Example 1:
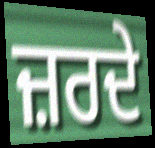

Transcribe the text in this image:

ਜ਼ਰਦੇ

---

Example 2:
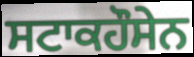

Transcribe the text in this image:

ਸਟਾਕਹੌਸੇਨ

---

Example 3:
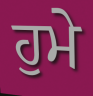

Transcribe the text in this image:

ਹੁਮੇ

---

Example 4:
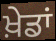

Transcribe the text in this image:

ਖ਼ੇਡਾਂ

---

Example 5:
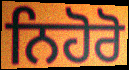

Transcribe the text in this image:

ਨਿਹੋਰੋ